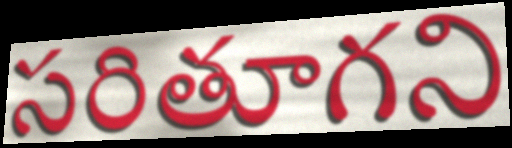
సరితూగని